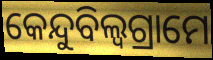
କେନ୍ଦୁବିଲ୍ଵଗ୍ରାମେ